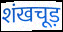
शंखचूड़